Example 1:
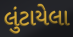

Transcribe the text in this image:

લુંટાયેલા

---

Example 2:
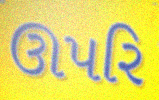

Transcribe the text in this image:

ઊપરિ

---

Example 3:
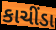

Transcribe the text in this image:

કાચીંડા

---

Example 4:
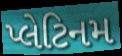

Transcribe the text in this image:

પ્લેટિનમ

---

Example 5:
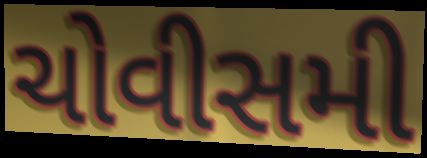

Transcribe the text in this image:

ચોવીસમી